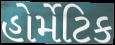
હોર્મેટિક